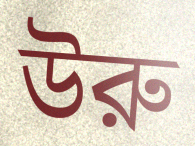
উরু